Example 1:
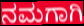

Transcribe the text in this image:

ನಮಗಾಗಿ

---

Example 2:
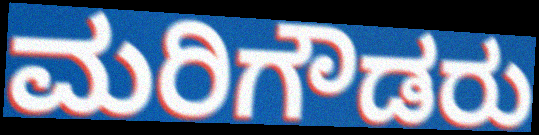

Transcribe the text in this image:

ಮರಿಗೌಡರು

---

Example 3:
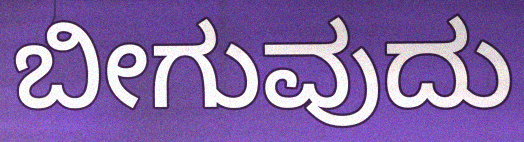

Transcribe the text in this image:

ಬೀಗುವುದು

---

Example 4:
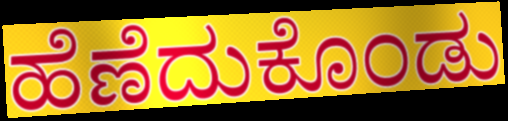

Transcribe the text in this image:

ಹೆಣೆದುಕೊಂಡು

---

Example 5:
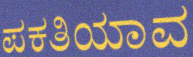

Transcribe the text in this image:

ಪಕತಿಯಾವ